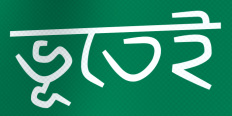
ভূতেই